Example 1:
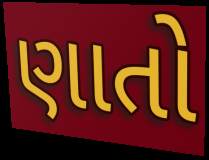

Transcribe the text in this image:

ણાતો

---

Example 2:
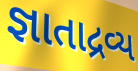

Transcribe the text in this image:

જ્ઞાતાદ્રવ્ય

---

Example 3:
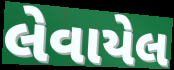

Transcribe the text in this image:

લેવાયેલ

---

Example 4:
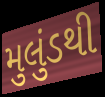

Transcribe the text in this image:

મુલુંડથી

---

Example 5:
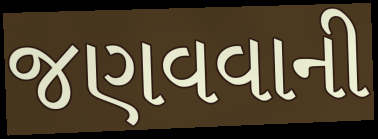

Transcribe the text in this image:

જણવવાની